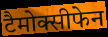
टैमोक्सीफेन